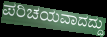
ಪರಿಚಯವಾದದ್ದು